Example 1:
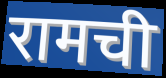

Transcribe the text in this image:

रामची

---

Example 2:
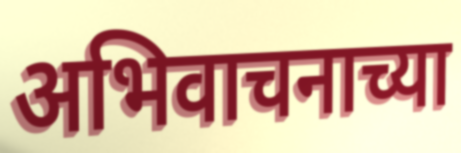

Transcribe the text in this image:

अभिवाचनाच्या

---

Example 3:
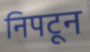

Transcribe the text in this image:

निपटून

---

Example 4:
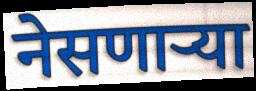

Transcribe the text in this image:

नेसणाऱ्या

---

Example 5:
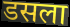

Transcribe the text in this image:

डसला